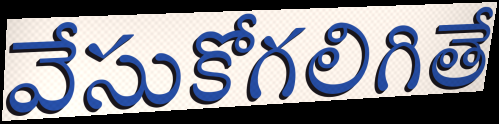
వేసుకోగలిగితే